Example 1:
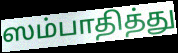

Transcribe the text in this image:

ஸம்பாதித்து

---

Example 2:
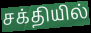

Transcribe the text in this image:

சக்தியில்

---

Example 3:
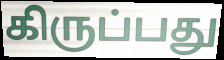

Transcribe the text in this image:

கிருப்பது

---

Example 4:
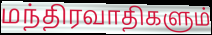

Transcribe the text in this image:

மந்திரவாதிகளும்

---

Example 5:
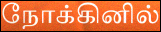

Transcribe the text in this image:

நோக்கினில்